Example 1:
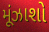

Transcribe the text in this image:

મૂંઝાશો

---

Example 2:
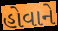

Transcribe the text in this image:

હોવાને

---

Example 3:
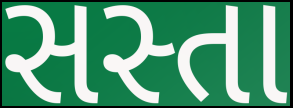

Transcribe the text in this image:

સસ્તા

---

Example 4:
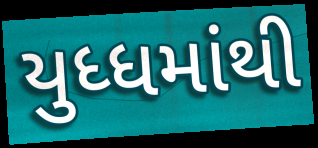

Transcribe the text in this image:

યુધ્ધમાંથી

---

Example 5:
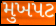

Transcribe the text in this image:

મુખપટ